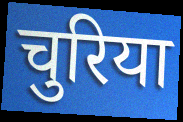
चुरिया